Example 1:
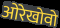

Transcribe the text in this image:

ओरेखोवो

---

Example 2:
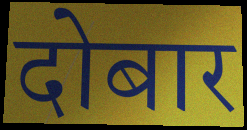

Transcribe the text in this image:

दोबार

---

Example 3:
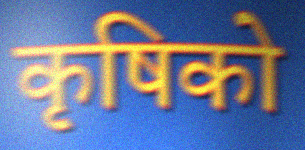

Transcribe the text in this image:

कृषिको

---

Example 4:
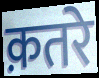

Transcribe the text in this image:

क़तरे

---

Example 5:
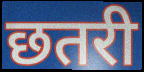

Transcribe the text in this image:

छतरी